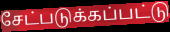
சேட்படுக்கப்பட்டு